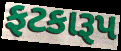
ફટકારૂપ